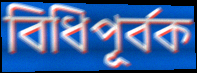
বিধিপূর্বক